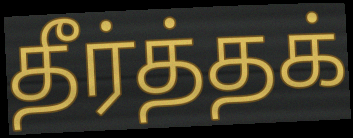
தீர்த்தக்